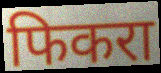
फिकरा